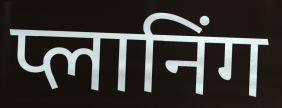
प्‍लानिंग